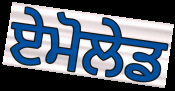
ਏਮੋਲੇਡ